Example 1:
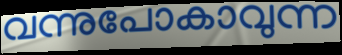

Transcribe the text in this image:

വന്നുപോകാവുന്ന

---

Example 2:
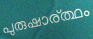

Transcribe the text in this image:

പുരുഷാര്ത്ഥം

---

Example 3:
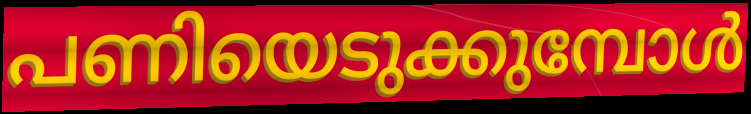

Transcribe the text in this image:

പണിയെടുക്കുമ്പോൾ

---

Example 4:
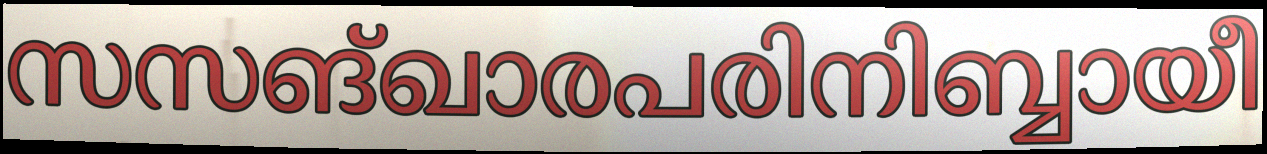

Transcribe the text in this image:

സസങ്ഖാരപരിനിബ്ബായീ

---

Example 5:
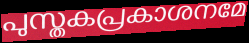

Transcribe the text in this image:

പുസ്തകപ്രകാശനമേ